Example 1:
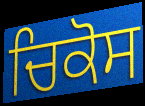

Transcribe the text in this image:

ਚਿਕੋਸ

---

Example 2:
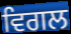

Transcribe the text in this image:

ਵਿਗਲ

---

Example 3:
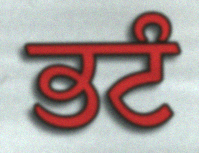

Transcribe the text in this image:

ਭਟੰ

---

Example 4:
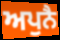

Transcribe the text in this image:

ਅਪੁਨੈ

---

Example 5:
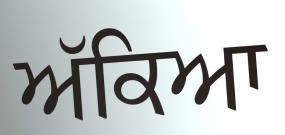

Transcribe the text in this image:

ਅੱਕਿਆ